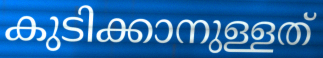
കുടിക്കാനുള്ളത്